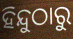
ହିନ୍ଦୁଠାରୁ